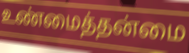
உண்மைத்தன்மை